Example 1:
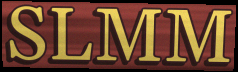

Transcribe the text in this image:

SLMM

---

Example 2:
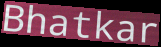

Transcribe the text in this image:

Bhatkar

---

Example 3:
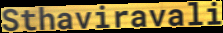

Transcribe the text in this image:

Sthaviravali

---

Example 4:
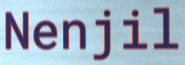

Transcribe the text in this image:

Nenjil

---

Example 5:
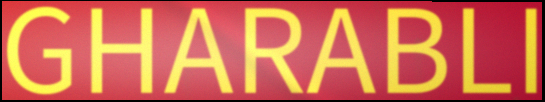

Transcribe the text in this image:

GHARABLI